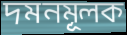
দমনমূলক